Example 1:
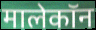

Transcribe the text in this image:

मालेकॉन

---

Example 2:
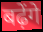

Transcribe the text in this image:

बढ़ेंगे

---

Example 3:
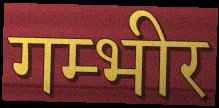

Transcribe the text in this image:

गम्भीर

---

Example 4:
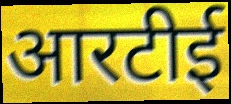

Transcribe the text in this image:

आरटीई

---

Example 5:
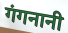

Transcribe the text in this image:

गंगनानी